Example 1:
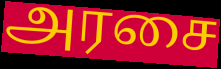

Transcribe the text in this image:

அரசை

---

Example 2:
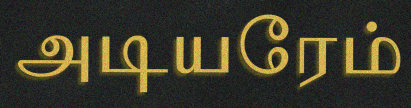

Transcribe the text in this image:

அடியரேம்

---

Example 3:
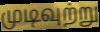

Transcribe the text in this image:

முடிவுற்று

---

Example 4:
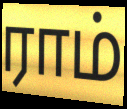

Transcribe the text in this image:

ராம்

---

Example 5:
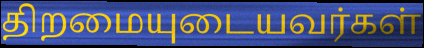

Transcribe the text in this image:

திறமையுடையவர்கள்